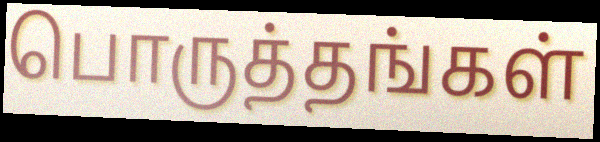
பொருத்தங்கள்